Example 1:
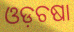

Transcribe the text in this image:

ଓଡ଼ଚଷା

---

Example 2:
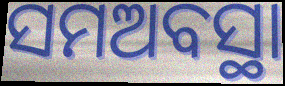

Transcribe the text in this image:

ସମଅବସ୍ଥା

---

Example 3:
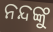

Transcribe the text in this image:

ନନ୍ଦଙ୍କୁ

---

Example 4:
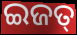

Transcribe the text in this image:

ଇଜତ୍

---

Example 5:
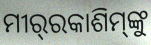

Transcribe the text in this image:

ମୀର୍‌ରକାଶିମ୍‌ଙ୍କୁ